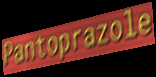
Pantoprazole